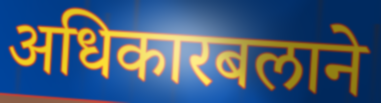
अधिकारबलाने